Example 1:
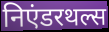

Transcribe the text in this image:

निएंडरथल्स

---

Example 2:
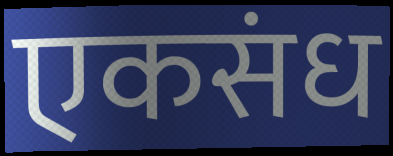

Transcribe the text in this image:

एकसंध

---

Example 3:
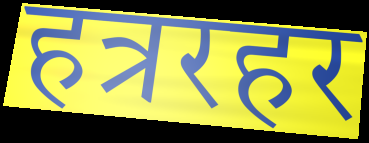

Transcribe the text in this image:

हत्ररहर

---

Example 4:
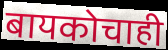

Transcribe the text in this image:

बायकोचाही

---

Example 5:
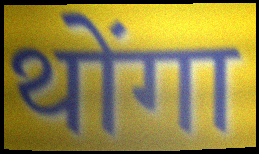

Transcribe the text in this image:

थोंगा